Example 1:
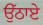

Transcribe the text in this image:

ਉੱਠਾਏ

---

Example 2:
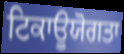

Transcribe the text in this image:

ਟਿਕਾਊਯੋਗਤਾ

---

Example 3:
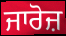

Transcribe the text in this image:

ਜਾਰੋਜ਼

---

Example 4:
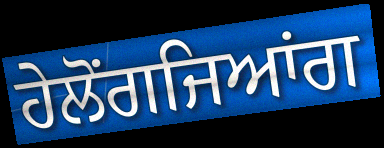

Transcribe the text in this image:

ਹੇਲੋਂਗਜਿਆਂਗ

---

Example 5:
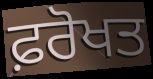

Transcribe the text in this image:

ਫ਼ਰੋਖਤ